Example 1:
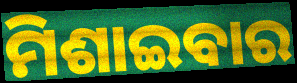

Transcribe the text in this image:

ମିଶାଇବାର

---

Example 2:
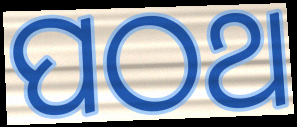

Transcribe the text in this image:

ପଠଥ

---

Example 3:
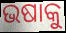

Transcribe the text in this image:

ଭଷାକୁ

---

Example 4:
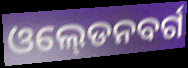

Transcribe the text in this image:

ଓଲ୍‍ଡେନବର୍ଗ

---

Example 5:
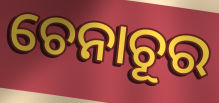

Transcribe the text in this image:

ଚେନାଚୂର